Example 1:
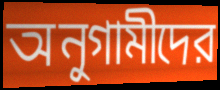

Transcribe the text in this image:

অনুগামীদের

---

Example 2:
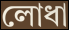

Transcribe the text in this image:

লোধা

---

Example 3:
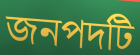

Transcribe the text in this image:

জনপদটি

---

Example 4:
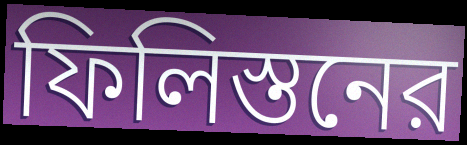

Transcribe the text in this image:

ফিলিস্তনের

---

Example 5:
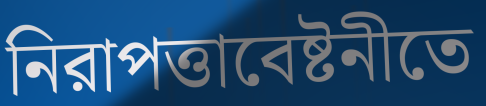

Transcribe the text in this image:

নিরাপত্তাবেষ্টনীতে